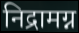
निद्रामग्न